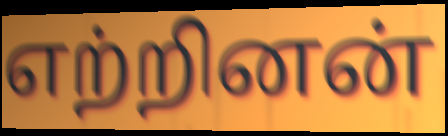
எற்றினன்